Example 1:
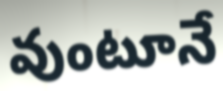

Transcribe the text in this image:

వుంటూనే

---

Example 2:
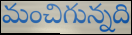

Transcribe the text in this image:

మంచిగున్నది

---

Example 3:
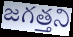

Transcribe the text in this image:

జగత్తని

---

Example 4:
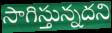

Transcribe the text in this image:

సాగిస్తున్నదని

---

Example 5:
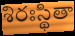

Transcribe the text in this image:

శిరఃస్థితా